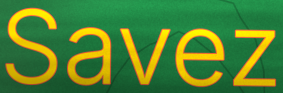
Savez